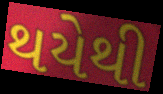
થયેથી